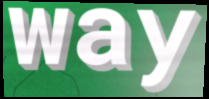
way